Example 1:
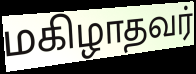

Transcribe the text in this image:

மகிழாதவர்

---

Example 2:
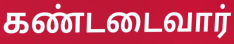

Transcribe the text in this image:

கண்டடைவார்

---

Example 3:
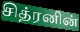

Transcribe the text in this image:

சித்ரனின்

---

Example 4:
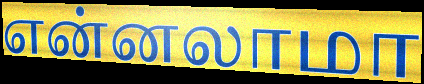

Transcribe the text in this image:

என்னலாமா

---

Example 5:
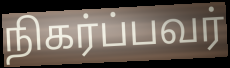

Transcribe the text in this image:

நிகர்ப்பவர்